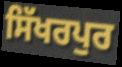
ਸਿੱਖਰਪੁਰ